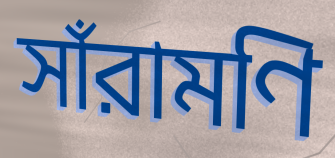
সাঁরামণি